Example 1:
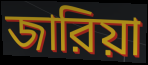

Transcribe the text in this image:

জারিয়া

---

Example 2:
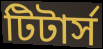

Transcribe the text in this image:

টিটার্স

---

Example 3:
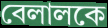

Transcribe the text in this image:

বেলালকে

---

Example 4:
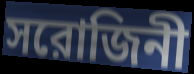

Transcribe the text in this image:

সরোজিনী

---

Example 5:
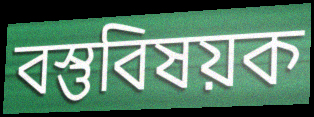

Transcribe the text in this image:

বস্তুবিষয়ক